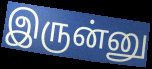
இருன்னு